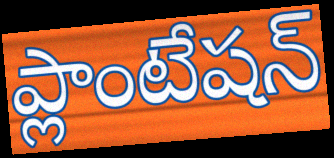
ప్లాంటేషన్